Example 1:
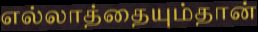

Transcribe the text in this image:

எல்லாத்தையும்தான்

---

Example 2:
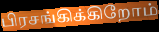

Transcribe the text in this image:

பிரசங்கிக்கிறோம்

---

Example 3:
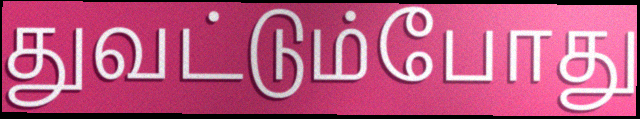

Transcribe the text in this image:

துவட்டும்போது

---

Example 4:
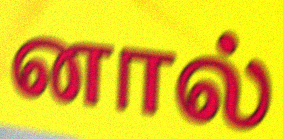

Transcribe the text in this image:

னால்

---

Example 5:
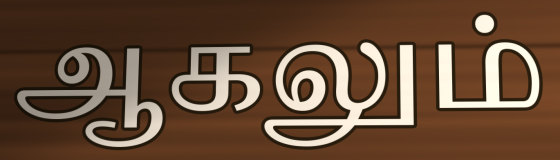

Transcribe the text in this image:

ஆகலும்